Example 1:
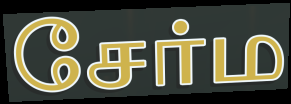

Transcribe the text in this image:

சேர்ம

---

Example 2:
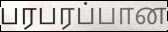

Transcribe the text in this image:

பரபரப்பான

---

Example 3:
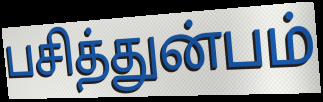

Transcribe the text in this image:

பசித்துன்பம்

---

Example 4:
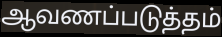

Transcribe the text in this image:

ஆவணப்படுத்தம்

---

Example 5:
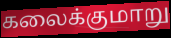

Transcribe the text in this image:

கலைக்குமாறு